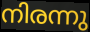
നിരന്നു